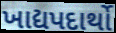
ખાદ્યપદાર્થો